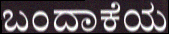
ಬಂದಾಕೆಯ